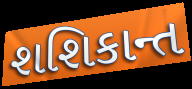
શશિકાન્ત